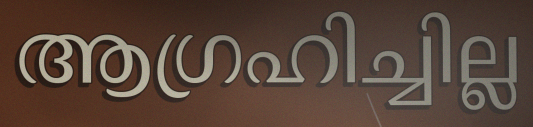
ആഗ്രഹിച്ചില്ല